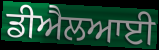
ਡੀਐਲਆਈ